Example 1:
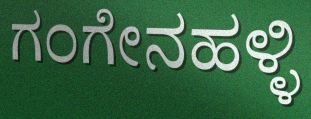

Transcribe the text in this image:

ಗಂಗೇನಹಳ್ಳಿ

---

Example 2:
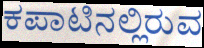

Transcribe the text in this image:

ಕಪಾಟಿನಲ್ಲಿರುವ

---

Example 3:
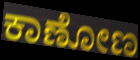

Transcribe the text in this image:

ಕಾಣೋಣ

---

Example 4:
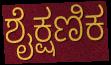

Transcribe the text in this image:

ಶೈಕ್ಷಣಿಕ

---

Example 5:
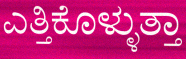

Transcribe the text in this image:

ಎತ್ತಿಕೊಳ್ಳುತ್ತಾ